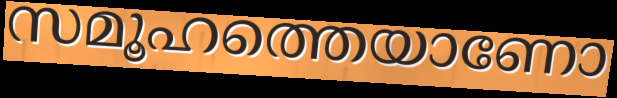
സമൂഹത്തെയാണോ